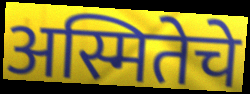
अस्मितेचे